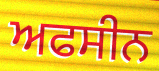
ਅਫਸੀਨ